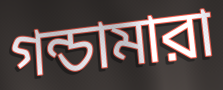
গন্ডামারা